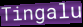
Tingalu